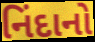
નિંદાનો